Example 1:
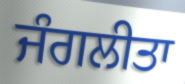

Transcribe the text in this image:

ਜੰਗਲੀਤਾ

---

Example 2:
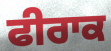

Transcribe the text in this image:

ਫੀਰਾਕ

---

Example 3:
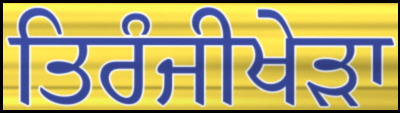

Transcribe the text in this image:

ਤਿਰੰਜੀਖੇੜਾ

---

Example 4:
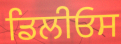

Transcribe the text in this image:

ਡਿਲੀਓਸ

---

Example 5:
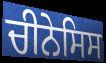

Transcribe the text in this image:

ਚੀਨੇਸਿਸ